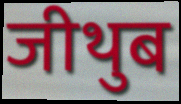
जीथुब